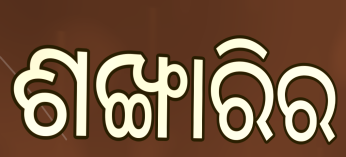
ଶଙ୍ଖାରିର